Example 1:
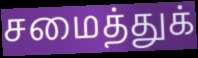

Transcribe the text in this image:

சமைத்துக்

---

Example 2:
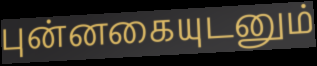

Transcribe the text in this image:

புன்னகையுடனும்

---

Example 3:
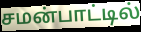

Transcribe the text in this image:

சமன்பாட்டில்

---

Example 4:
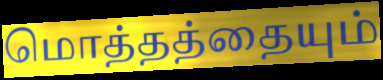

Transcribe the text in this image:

மொத்தத்தையும்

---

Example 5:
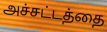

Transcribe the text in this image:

அச்சட்டத்தை